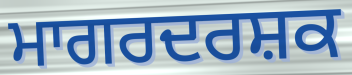
ਮਾਗਰਦਰਸ਼ਕ